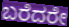
ಬರೆದರೇ